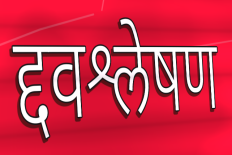
द्दवश्लेषण